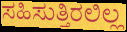
ಸಹಿಸುತ್ತಿರಲಿಲ್ಲ